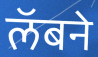
लॅबने